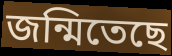
জন্মিতেছে